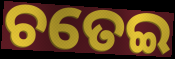
ଚତେଇ